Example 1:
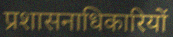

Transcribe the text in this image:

प्रशासनाधिकारियों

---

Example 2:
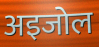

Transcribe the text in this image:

अइजोल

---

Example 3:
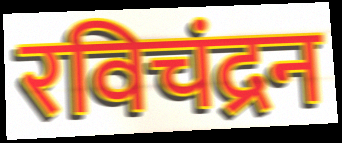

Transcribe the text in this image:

रविचंद्रन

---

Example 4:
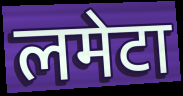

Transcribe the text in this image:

लमेटा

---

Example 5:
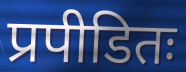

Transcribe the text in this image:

प्रपीडितः